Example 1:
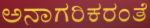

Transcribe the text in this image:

ಅನಾಗರಿಕರಂತೆ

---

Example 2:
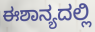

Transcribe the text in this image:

ಈಶಾನ್ಯದಲ್ಲಿ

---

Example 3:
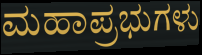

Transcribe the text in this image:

ಮಹಾಪ್ರಭುಗಳು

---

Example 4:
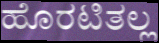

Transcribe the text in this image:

ಹೊರಟಿತಲ್ಲ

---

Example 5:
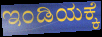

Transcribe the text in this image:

ಇಂಡಿಯಕ್ಕೆ